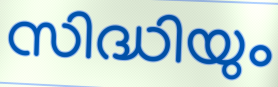
സിദ്ധിയും